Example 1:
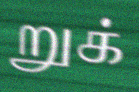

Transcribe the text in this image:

றுக்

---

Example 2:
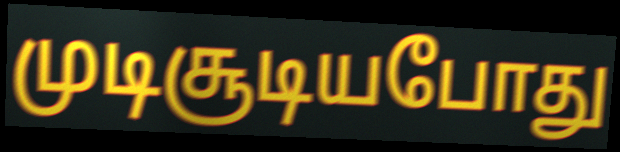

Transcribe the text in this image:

முடிசூடியபோது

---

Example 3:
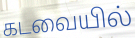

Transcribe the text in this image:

கடவையில்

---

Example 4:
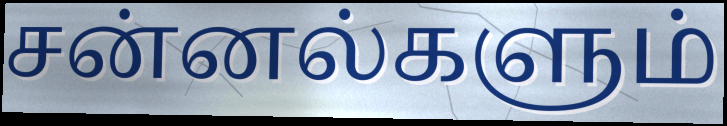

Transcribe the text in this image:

சன்னல்களும்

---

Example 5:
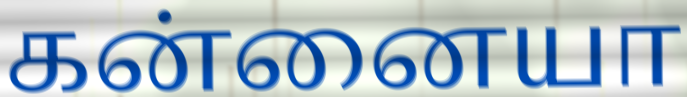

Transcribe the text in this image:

கன்னையா